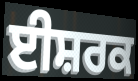
ਈਸ਼ਰਕ